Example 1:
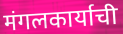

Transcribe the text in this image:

मंगलकार्याची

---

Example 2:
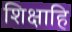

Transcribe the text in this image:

शिक्षाहि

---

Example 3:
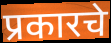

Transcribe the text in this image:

प्रकारचे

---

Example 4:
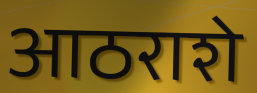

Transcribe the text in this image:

आठराशे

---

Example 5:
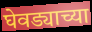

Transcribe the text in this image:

घेवड्याच्या